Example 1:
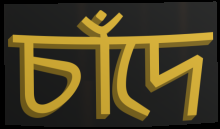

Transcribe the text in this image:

চাঁদে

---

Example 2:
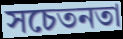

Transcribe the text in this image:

সচেতনতা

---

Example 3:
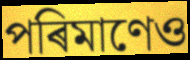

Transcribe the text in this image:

পৰিমাণেও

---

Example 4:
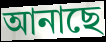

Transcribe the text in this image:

আনাছে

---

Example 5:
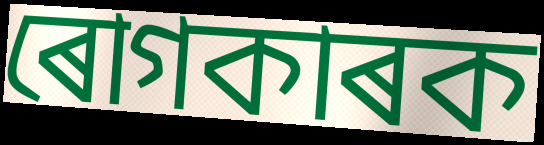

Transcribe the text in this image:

ৰোগকাৰক